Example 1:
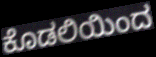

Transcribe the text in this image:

ಕೊಡಲಿಯಿಂದ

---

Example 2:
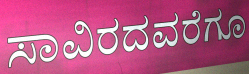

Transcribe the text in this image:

ಸಾವಿರದವರೆಗೂ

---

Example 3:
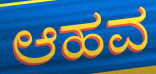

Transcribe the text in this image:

ಆಹವ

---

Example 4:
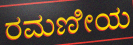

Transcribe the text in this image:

ರಮಣೀಯ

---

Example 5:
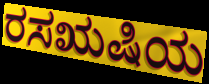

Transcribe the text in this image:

ರಸಋಷಿಯ